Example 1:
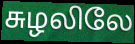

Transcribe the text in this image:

சுழலிலே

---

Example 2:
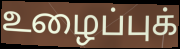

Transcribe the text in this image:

உழைப்புக்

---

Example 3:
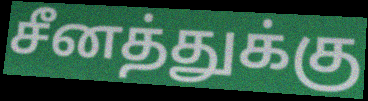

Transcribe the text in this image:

சீனத்துக்கு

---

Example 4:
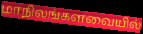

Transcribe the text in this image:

மாநிலங்களவையில்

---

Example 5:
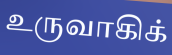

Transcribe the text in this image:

உருவாகிக்